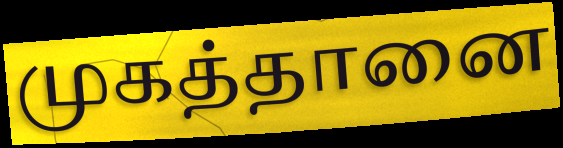
முகத்தானை